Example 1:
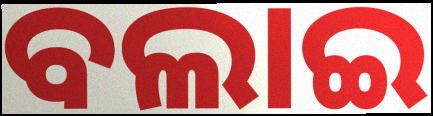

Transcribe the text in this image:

ବଲାଇ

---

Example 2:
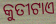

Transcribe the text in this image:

କୁତୀଟାଏ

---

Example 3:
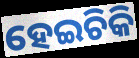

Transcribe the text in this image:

ହେଇଚିକି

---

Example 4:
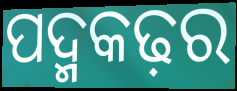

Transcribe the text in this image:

ପଦ୍ମକଢ଼ର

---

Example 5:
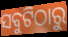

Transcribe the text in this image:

ସବୁଟିଠାରୁ